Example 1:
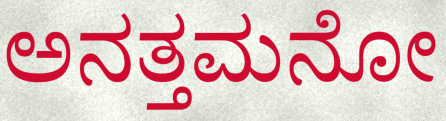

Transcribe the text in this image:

ಅನತ್ತಮನೋ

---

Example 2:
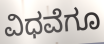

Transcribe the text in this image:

ವಿಧವೆಗೂ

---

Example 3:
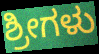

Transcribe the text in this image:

ಶ್ರೀಗಳು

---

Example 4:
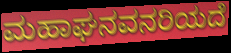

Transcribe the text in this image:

ಮಹಾಘನವನರಿಯದೆ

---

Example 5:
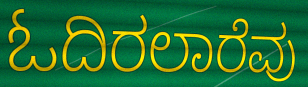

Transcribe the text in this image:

ಓದಿರಲಾರೆವು